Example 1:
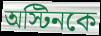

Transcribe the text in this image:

অস্টিনকে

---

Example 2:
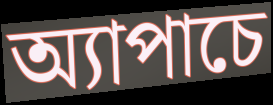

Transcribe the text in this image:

অ্যাপাচে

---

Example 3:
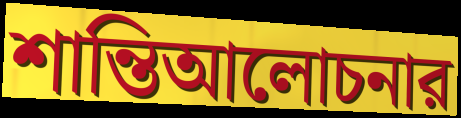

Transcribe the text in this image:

শান্তিআলোচনার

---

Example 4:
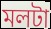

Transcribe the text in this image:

মলটা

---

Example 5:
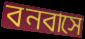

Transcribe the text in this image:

বনবাসে